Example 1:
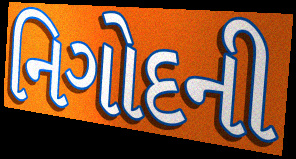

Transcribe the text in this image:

નિગોદની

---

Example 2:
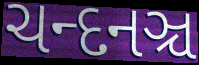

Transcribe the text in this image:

ચન્દનઞ્ચ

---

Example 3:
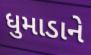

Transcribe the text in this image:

ધુમાડાને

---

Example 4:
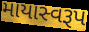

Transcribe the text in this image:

માયાસ્વરૂપ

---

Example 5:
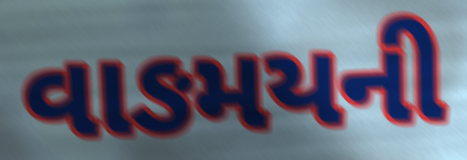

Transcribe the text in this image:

વાઙમયની